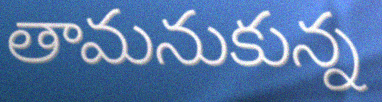
తామనుకున్న